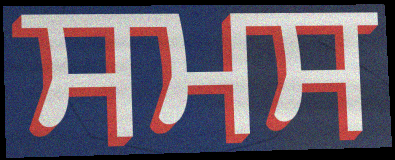
ਸਮਸ